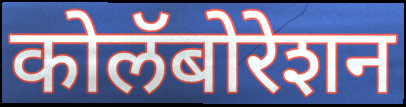
कोलॅबोरेशन